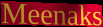
Meenaks